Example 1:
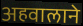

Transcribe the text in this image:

अहवालाने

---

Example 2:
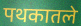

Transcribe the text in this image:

पथकातले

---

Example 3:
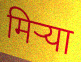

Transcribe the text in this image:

मिऱ्या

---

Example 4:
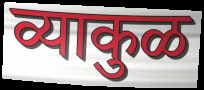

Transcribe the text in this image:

व्याकुळ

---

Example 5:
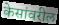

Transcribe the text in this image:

केसांवरील